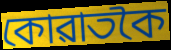
কোৱাতকৈ